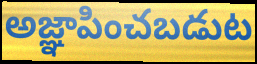
అజ్ఞాపించబడుట